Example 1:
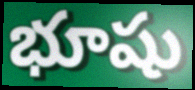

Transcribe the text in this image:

భూషు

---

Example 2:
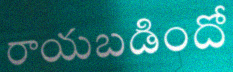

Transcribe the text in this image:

రాయబడిందో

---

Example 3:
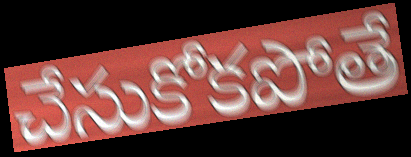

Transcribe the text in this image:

చేసుకోకపోతే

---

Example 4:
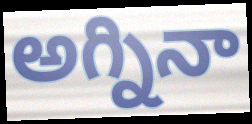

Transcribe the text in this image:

అగ్నినా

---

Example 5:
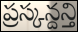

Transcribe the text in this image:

ప్రస్కన్దన్తి